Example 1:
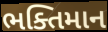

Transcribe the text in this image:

ભક્તિમાન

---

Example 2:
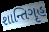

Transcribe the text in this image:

શાન્તિગૃહ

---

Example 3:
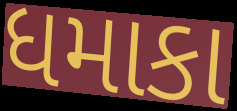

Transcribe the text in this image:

ધમાકા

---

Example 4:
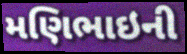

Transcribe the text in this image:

મણિભાઇની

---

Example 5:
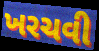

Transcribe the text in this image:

ખરચવી